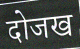
दोजख